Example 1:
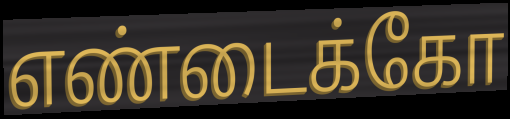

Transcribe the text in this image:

எண்டைக்கோ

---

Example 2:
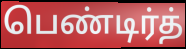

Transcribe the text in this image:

பெண்டிர்த்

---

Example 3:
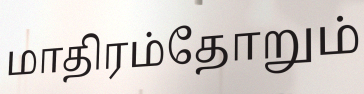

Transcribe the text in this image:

மாதிரம்தோறும்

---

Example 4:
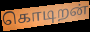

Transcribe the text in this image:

கொடிறன்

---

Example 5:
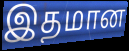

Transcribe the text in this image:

இதமான